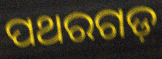
ପଥରଗଡ଼